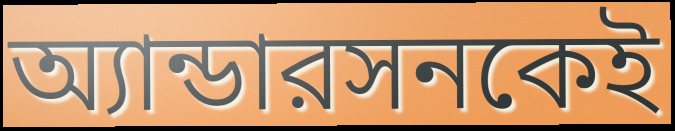
অ্যান্ডারসনকেই